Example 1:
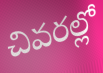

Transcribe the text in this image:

చివరల్లో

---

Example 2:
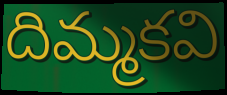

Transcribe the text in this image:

దిమ్మకవి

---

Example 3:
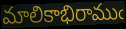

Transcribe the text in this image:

మాలికాభిరాముఁ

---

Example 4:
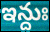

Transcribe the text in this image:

ఇన్దుః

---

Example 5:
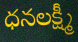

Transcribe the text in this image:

ధనలక్ష్మీ